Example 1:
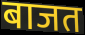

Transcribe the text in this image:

बाजत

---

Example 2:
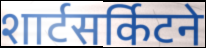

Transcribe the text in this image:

शार्टसर्किटने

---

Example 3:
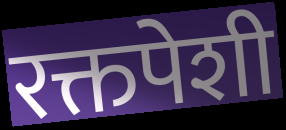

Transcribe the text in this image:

रक्तपेशी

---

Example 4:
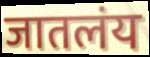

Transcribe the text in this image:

जातलंय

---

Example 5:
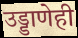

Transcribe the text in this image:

उड्डाणेही